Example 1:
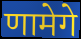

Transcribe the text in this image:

णामेगे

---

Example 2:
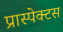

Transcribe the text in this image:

प्रास्पेक्टस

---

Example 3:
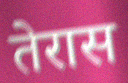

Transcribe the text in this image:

तेरास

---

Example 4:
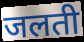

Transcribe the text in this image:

जलती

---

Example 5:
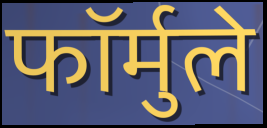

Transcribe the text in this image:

फॉर्मुले